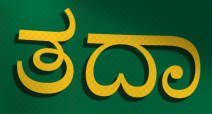
ತದಾ